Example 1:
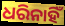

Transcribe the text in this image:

ଧରିନାହିଁ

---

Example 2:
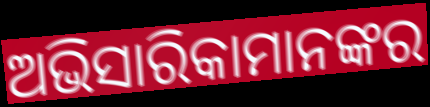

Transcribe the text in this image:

ଅଭିସାରିକାମାନଙ୍କର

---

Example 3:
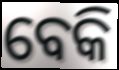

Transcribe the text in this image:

ବେକି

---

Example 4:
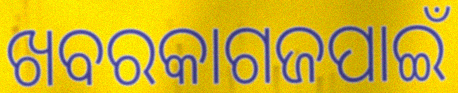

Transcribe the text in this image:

ଖବରକାଗଜପାଇଁ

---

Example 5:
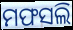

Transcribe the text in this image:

ମଫସଲି